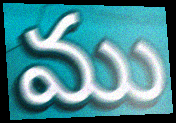
ము